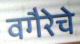
वगैरेचे